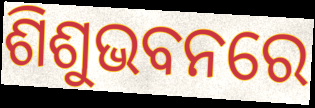
ଶିଶୁଭବନରେ